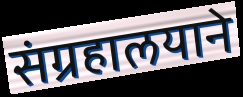
संग्रहालयाने